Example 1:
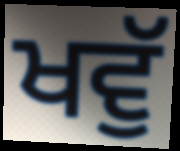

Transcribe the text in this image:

ਖਵੁੱ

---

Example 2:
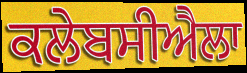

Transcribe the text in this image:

ਕਲੇਬਸੀਐਲਾ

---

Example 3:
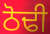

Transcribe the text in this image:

ਠੋਢੀ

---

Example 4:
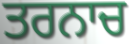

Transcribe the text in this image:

ਤਰਨਾਚ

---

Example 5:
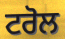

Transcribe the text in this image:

ਟਰੋਲ